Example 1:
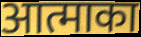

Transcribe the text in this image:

आत्माका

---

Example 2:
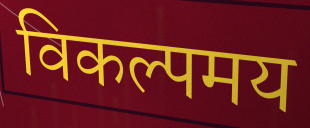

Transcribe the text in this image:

विकल्पमय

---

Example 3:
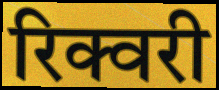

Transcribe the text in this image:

रिक्वरी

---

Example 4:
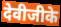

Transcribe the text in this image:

देवीजीके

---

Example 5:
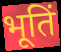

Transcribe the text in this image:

भूतिं